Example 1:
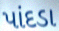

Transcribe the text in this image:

પાંદડા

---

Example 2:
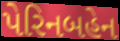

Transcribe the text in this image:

પેરિનબહેન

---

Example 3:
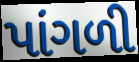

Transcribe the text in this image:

પાંગળી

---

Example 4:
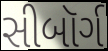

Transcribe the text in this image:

સીબૉર્ગ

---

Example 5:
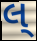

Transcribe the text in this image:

લ્